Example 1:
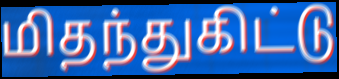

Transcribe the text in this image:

மிதந்துகிட்டு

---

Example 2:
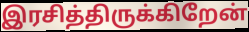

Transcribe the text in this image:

இரசித்திருக்கிறேன்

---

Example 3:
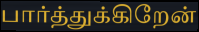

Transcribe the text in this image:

பார்த்துக்கிறேன்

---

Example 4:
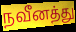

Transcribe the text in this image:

நவீனத்து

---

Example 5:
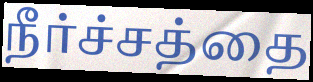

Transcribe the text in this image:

நீர்ச்சத்தை